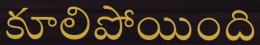
కూలిపోయింది